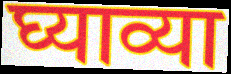
घ्याव्या